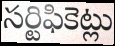
సర్టిఫికెట్లు